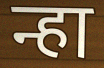
न्हा